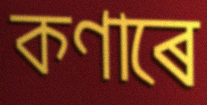
কণাৰে